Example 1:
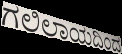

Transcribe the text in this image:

ಗಲಿಲಾಯದಿಂದ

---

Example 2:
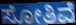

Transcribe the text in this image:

ಸೋತಿವೆ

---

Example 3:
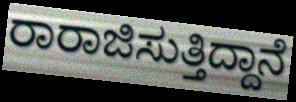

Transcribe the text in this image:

ರಾರಾಜಿಸುತ್ತಿದ್ದಾನೆ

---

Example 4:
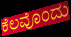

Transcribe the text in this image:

ಕೆಲವೊಂದು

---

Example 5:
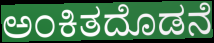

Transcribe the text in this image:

ಅಂಕಿತದೊಡನೆ